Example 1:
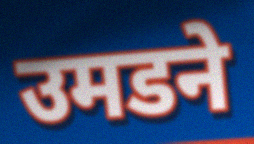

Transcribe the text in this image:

उमडने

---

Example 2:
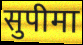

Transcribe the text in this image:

सुपीमा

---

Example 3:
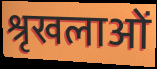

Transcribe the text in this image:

श्रृखलाओं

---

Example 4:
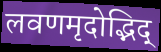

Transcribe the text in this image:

लवणमृदोद्भिद्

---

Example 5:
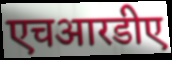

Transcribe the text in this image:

एचआरडीए